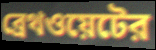
ব্রেথওয়েটের